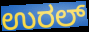
ಉರಲ್